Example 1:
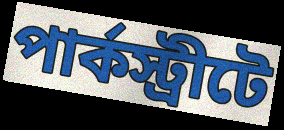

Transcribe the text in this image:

পার্কস্ট্রীটে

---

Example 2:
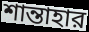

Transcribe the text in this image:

শান্তাহার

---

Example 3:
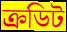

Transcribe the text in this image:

ক্রডিট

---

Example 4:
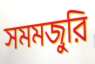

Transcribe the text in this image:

সমমজুরি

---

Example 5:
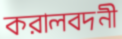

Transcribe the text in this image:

করালবদনী